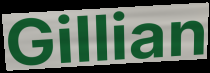
Gillian